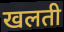
खलती